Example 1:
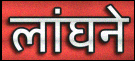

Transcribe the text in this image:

लांघने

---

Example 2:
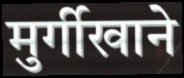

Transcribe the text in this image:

मुर्गीखाने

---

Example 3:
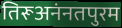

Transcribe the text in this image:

तिरूअनंनतपुरम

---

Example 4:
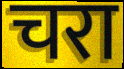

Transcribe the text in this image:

चरा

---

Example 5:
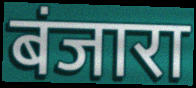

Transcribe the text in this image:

बंजारा